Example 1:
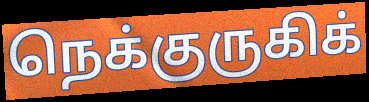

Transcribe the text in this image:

நெக்குருகிக்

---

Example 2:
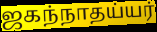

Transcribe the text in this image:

ஜகந்நாதய்யர்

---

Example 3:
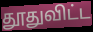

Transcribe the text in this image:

தூதுவிட்ட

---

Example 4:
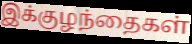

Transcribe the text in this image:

இக்குழந்தைகள்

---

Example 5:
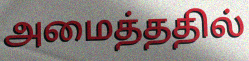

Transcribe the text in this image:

அமைத்ததில்